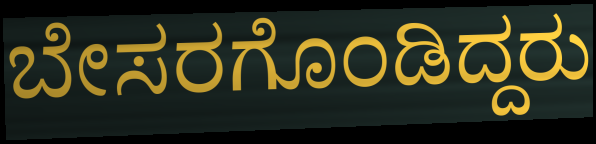
ಬೇಸರಗೊಂಡಿದ್ದರು